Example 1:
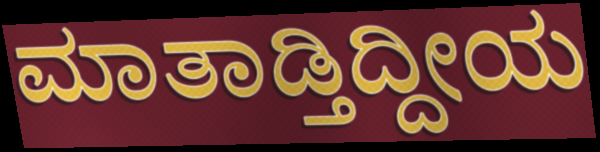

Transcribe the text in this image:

ಮಾತಾಡ್ತಿದ್ದೀಯ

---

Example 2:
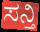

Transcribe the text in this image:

ಸನ್ತಿ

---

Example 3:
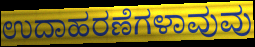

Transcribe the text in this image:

ಉದಾಹರಣೆಗಳಾವುವು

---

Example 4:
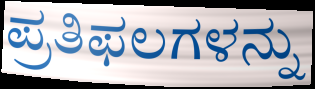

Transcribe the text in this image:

ಪ್ರತಿಫಲಗಳನ್ನು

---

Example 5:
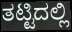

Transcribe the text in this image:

ತಟ್ಟಿದಲ್ಲಿ